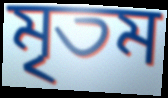
মৃতম